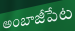
అంబాజీపేట